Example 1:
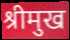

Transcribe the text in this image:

श्रीमुख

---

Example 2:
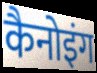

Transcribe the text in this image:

कैनोइंग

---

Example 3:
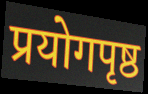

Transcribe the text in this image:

प्रयोगपृष्ठ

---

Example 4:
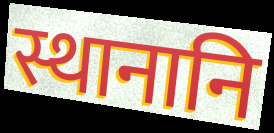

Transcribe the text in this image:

स्थानानि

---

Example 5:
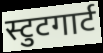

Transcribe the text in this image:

स्टुटगार्ट